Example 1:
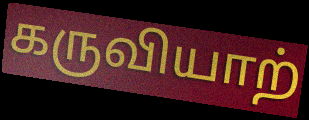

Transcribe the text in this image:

கருவியாற்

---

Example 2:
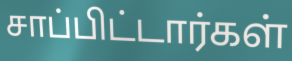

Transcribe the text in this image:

சாப்பிட்டார்கள்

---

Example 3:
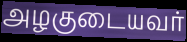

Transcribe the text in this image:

அழகுடையவர்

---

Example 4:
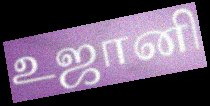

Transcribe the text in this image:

உஜானி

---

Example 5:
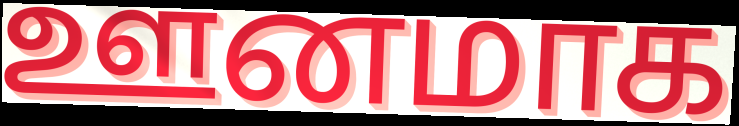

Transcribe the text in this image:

ஊனமாக